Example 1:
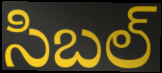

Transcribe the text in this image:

సిబల్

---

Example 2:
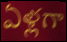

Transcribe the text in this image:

ఏళ్లగా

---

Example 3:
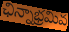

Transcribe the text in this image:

ఛిన్నాభ్రమివ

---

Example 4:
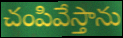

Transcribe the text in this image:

చంపివేస్తాను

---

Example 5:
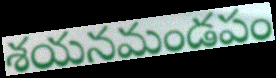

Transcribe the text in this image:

శయనమండపం